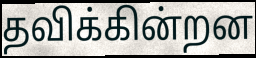
தவிக்கின்றன